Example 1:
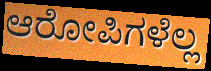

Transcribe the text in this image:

ಆರೋಪಿಗಳೆಲ್ಲ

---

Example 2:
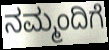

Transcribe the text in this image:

ನಮ್ಮಂದಿಗೆ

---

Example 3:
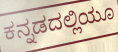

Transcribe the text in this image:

ಕನ್ನಡದಲ್ಲಿಯೂ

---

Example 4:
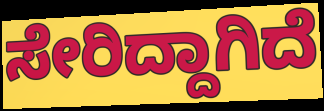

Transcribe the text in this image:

ಸೇರಿದ್ದಾಗಿದೆ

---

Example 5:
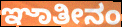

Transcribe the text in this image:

ಞಾತೀನಂ